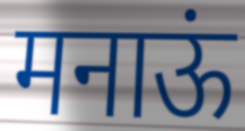
मनाऊं